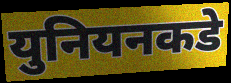
युनियनकडे